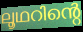
ലൂഥറിന്റെ